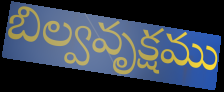
బిల్వవృక్షము